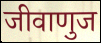
जीवाणुज